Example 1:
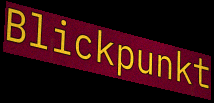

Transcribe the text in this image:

Blickpunkt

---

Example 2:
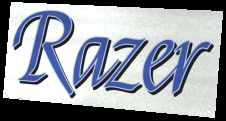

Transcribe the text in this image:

Razer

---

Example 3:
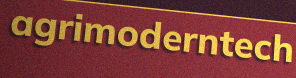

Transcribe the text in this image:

agrimoderntech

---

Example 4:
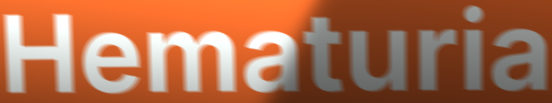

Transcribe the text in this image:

Hematuria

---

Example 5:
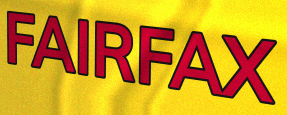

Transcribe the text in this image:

FAIRFAX